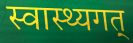
स्वास्थ्यगत्